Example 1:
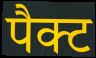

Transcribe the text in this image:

पैक्ट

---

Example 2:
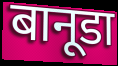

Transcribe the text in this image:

बानूडा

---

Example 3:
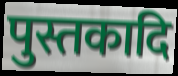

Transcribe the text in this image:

पुस्तकादि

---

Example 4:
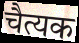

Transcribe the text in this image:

चैत्यक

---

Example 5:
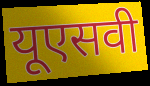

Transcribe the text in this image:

यूएसवी